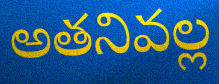
అతనివల్ల